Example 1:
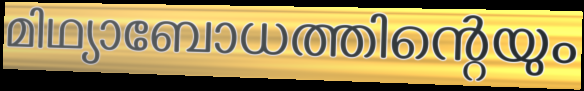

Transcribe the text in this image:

മിഥ്യാബോധത്തിന്റെയും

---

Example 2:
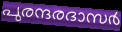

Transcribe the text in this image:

പുരന്ദരദാസർ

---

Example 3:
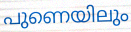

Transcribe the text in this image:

പുണെയിലും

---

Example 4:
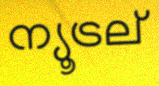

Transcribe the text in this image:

ന്യൂട്രല്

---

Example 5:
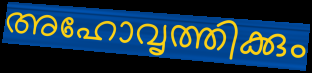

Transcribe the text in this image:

അഹോവൃത്തിക്കും